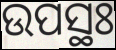
ଉପସ୍ଥଃ